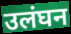
उलंघन